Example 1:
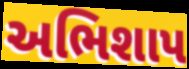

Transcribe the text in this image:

અભિશાપ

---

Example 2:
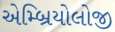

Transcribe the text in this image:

એમ્બ્રિયોલોજી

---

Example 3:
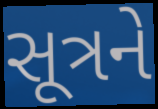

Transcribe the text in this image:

સૂત્રને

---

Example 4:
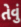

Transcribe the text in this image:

તેવું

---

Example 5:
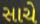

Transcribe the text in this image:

સાચે